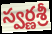
స్వర్ణశ్రీ